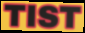
TIST